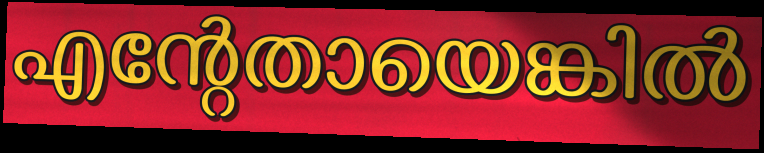
എന്റേതായെങ്കിൽ